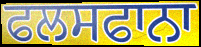
ਫਲਸਫਾਨਾ